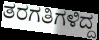
ತರಗತಿಗಳಿದ್ದ